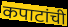
कपाटांची